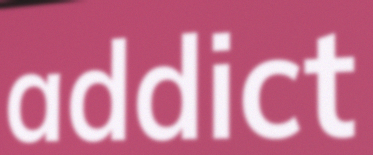
addict